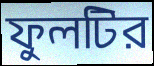
ফুলটির